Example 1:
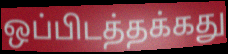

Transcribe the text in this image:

ஒப்பிடத்தக்கது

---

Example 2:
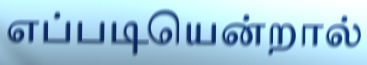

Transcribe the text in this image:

எப்படியென்றால்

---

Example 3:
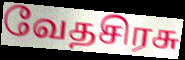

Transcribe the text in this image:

வேதசிரசு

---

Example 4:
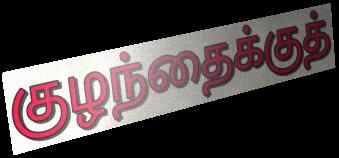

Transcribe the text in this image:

குழந்தைக்குத்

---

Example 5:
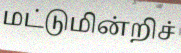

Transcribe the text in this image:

மட்டுமின்றிச்